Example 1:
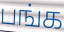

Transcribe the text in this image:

பங்க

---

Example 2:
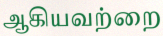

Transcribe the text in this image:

ஆகியவற்றை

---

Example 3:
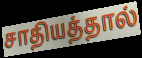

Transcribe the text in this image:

சாதியத்தால்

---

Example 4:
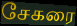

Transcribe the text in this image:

சேகரை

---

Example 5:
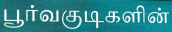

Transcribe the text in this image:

பூர்வகுடிகளின்